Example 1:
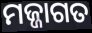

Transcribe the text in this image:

ମଜ୍ଜାଗତ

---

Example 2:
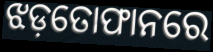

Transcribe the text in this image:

ଝଡ଼ତୋଫାନରେ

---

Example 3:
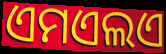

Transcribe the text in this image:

ଏମଏଲଏ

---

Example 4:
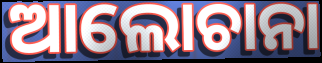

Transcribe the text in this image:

ଆଲୋଚାନା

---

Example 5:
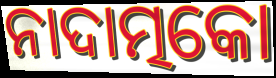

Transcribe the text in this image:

ନାଦାତ୍ମକୋ